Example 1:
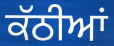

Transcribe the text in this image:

ਕੱਠੀਆਂ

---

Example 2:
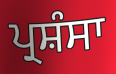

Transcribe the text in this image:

ਪ੍ਰਸ਼ੰਸਾ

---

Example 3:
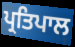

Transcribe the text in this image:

ਪ੍ਰਤਿਪਾਲ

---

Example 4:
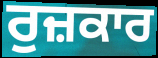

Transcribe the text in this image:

ਰੁਜ਼ਕਾਰ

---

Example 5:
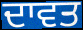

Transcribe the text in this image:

ਦਾਵਤ